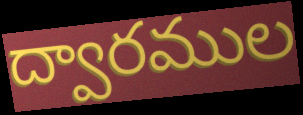
ద్వారముల